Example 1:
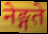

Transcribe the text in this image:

नेङ्गते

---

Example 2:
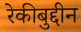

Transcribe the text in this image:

रेकीबुद्दीन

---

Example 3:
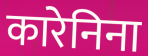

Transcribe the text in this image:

कारेनिना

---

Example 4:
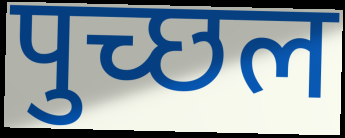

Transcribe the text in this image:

पुच्छल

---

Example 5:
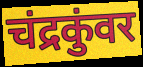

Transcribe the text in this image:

चंद्रकुंवर